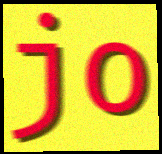
jo